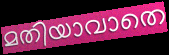
മതിയാവാതെ